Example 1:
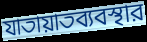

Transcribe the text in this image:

যাতায়াতব্যবস্থার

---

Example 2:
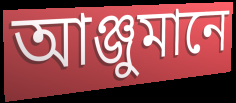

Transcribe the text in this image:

আঞ্জুমানে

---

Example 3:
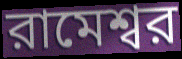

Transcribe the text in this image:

রামেশ্বর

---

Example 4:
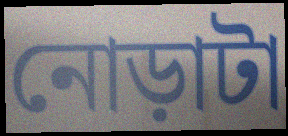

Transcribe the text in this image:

নোড়াটা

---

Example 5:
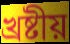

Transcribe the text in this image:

খ্রষ্টীয়